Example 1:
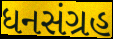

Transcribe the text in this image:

ધનસંગ્રહ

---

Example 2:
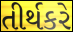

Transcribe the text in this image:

તીર્થકરે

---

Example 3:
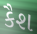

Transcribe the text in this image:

કૈશ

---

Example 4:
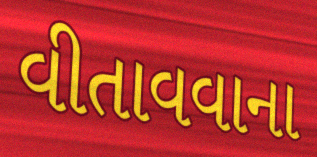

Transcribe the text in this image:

વીતાવવાના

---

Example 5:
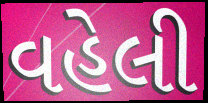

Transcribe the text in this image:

વહેલી